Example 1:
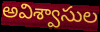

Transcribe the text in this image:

అవిశ్వాసుల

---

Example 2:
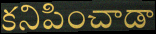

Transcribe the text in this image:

కనిపించాడా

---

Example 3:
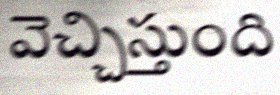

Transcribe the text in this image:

వెచ్చిస్తుంది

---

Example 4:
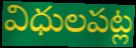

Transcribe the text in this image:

విధులపట్ల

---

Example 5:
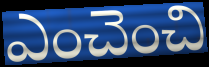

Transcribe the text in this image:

ఎంచెంచి